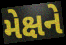
મેક્ષને